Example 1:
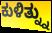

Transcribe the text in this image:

ಕುಳಿತ್ನ್ನು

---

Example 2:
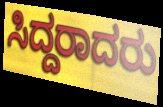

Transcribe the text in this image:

ಸಿದ್ದರಾದರು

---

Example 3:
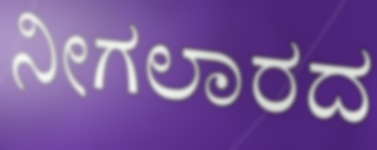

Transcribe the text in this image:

ನೀಗಲಾರದ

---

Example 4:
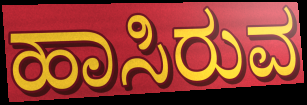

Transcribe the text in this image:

ಹಾಸಿರುವ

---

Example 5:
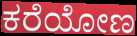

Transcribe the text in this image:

ಕರೆಯೋಣ